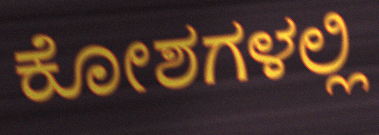
ಕೋಶಗಳಲ್ಲಿ